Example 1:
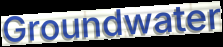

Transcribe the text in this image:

Groundwater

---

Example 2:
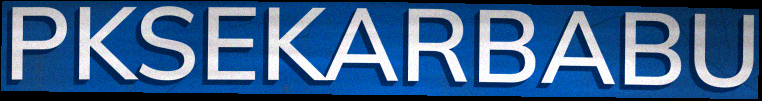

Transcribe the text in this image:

PKSEKARBABU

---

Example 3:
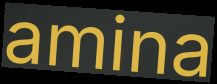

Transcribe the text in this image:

amina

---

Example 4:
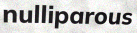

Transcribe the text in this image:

nulliparous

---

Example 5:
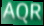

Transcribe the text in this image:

AQR